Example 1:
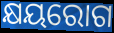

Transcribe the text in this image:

କ୍ଷୟରୋଗ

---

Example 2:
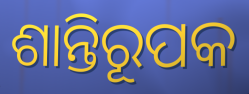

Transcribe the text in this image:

ଶାନ୍ତିରୂପକ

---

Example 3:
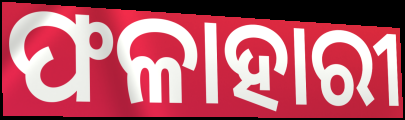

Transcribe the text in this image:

ଫଳାହାରୀ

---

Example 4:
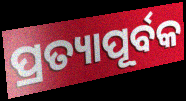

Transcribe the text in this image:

ପ୍ରତ୍ୟାପୂର୍ବକ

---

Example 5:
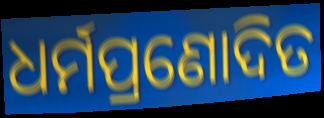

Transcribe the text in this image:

ଧର୍ମପ୍ରଣୋଦିତ